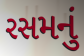
રસમનું